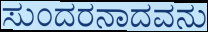
ಸುಂದರನಾದವನು